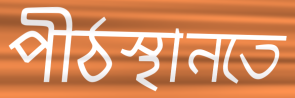
পীঠস্থানতে